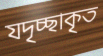
যদৃচ্ছাকৃত